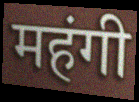
महंगी